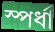
স্পর্ধা